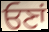
ਓਣਾਂ